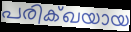
പരിക്ഖയായ